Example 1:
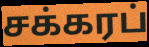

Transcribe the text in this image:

சக்கரப்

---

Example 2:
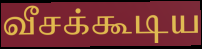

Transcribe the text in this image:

வீசக்கூடிய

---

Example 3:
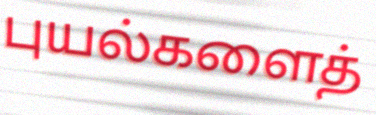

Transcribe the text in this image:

புயல்களைத்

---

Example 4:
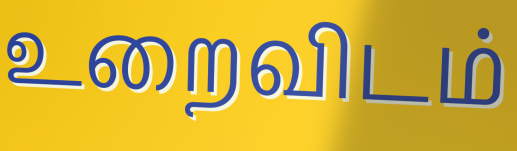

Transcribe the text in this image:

உறைவிடம்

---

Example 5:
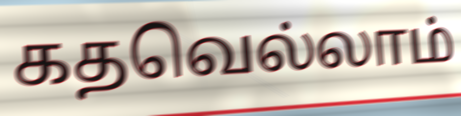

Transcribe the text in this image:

கதவெல்லாம்